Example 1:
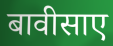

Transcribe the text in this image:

बावीसाए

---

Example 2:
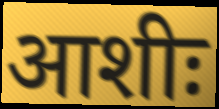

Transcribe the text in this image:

आशीः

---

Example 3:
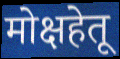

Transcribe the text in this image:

मोक्षहेतू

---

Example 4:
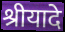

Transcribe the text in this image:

श्रीयादे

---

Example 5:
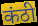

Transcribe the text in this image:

कंठी